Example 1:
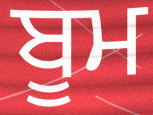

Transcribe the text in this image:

ਬੂਮ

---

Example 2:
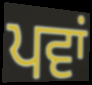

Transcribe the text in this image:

ਪਵਾਂ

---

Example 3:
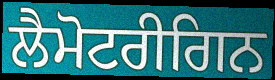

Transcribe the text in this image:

ਲੈਮੋਟਰੀਗਿਨ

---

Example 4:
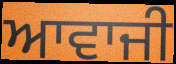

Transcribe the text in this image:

ਆਵਾਜੀ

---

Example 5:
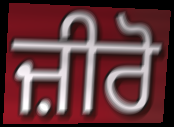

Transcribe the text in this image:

ਜ਼ੀਰੋ